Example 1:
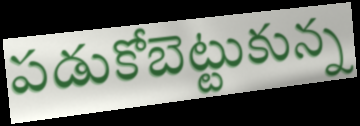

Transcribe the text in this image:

పడుకోబెట్టుకున్న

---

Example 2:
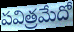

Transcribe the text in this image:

పవిత్రమేదో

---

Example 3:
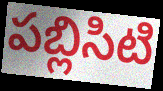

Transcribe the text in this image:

పబ్లిసిటి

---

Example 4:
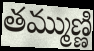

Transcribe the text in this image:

తమ్ముణ్ణి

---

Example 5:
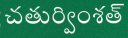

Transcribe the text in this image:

చతుర్వింశత్